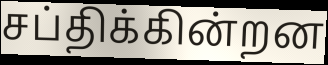
சப்திக்கின்றன